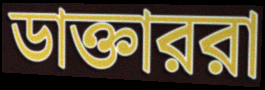
ডাক্তাররা